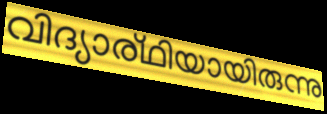
വിദ്യാര്ഥിയായിരുന്നു